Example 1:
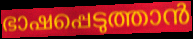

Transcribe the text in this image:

ഭാഷപ്പെടുത്താൻ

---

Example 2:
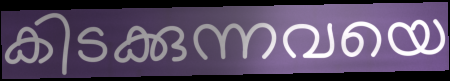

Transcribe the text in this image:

കിടക്കുന്നവയെ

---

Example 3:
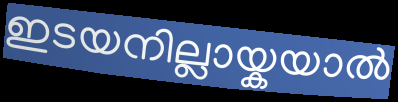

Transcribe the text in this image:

ഇടയനില്ലായ്കയാൽ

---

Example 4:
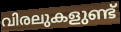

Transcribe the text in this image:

വിരലുകളുണ്ട്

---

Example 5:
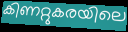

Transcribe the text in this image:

കിണറ്റുകരയിലെ